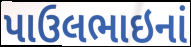
પાઉલભાઇનાં